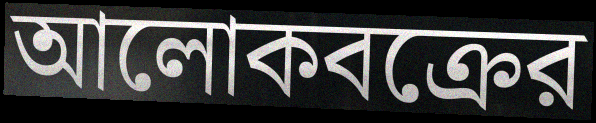
আলোকবক্রের